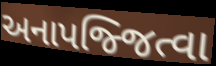
અનાપજ્જિત્વા